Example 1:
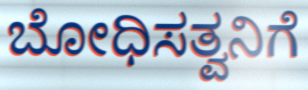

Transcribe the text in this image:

ಬೋಧಿಸತ್ವನಿಗೆ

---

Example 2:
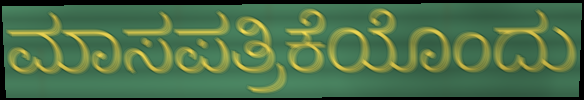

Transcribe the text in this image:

ಮಾಸಪತ್ರಿಕೆಯೊಂದು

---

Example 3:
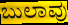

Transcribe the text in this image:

ಬುಲಾವು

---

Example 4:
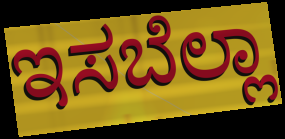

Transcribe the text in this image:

ಇಸಬೆಲ್ಲಾ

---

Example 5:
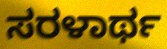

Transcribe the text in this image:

ಸರಳಾರ್ಥ